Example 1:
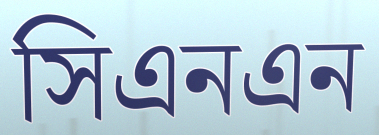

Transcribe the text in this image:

সিএনএন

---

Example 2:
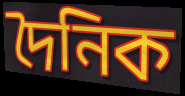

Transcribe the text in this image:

দৈনিক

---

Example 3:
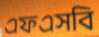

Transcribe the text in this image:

এফএসবি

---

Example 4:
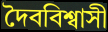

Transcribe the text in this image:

দৈববিশ্বাসী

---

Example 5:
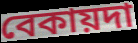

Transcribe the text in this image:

বেকায়দা